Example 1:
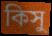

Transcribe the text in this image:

কিসু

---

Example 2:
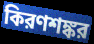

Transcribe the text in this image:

কিরণশঙ্কর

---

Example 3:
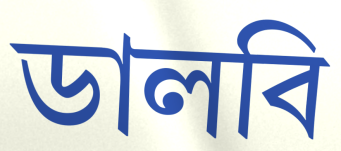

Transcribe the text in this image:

ডালবি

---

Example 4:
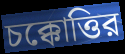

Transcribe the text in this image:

চক্কোত্তির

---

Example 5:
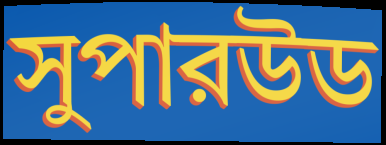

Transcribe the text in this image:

সুপারউড